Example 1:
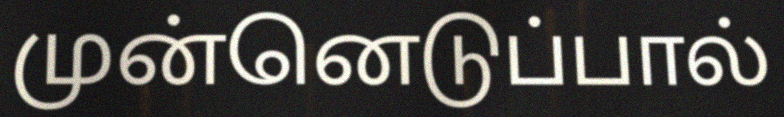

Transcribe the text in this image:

முன்னெடுப்பால்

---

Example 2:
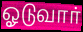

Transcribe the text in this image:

ஓடுவார்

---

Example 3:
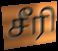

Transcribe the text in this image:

சீரி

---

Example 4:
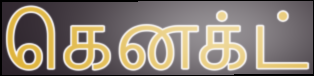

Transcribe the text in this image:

கெனக்ட்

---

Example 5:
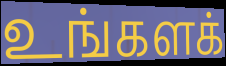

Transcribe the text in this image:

உங்களக்